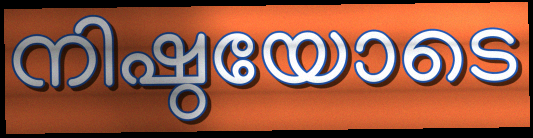
നിഷ്ഠയോടെ